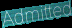
Admitted